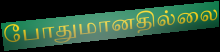
போதுமானதில்லை